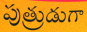
పుత్రుడుగా